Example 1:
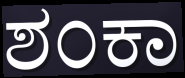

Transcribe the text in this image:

ಶಂಕಾ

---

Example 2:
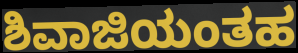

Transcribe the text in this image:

ಶಿವಾಜಿಯಂತಹ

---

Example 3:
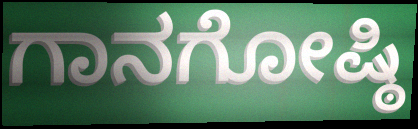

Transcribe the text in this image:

ಗಾನಗೋಷ್ಠಿ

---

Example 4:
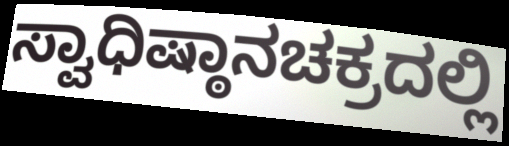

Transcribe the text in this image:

ಸ್ವಾಧಿಷ್ಠಾನಚಕ್ರದಲ್ಲಿ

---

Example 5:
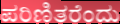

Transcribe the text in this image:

ಪರಿಣಿತರೆಂದು